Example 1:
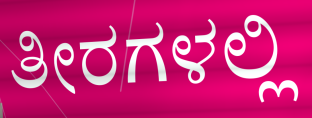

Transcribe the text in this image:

ತೀರಗಳಲ್ಲಿ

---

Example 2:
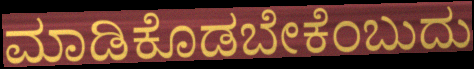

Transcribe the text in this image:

ಮಾಡಿಕೊಡಬೇಕೆಂಬುದು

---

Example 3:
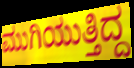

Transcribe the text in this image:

ಮುಗಿಯುತ್ತಿದ್ದ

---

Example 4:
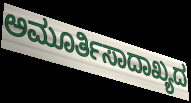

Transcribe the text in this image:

ಅಮೂರ್ತಿಸಾದಾಖ್ಯದ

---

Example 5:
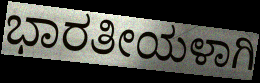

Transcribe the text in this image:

ಭಾರತೀಯಳಾಗಿ